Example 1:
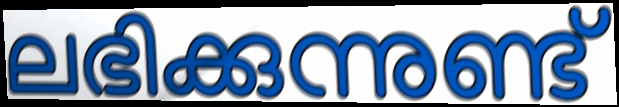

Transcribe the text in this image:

ലഭിക്കുന്നുണ്ട്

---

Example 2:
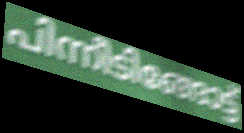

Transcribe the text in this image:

പിന്നീടിങ്ങോട്ട്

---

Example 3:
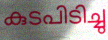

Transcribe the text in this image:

കുടപിടിച്ചു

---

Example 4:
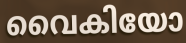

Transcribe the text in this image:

വൈകിയോ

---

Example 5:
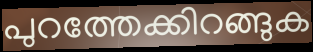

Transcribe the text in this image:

പുറത്തേക്കിറങ്ങുക